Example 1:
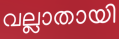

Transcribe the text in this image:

വല്ലാതായി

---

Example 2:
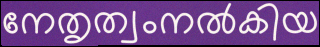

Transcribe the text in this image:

നേതൃത്വംനൽകിയ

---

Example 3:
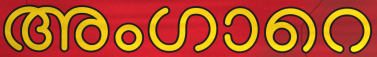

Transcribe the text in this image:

അംഗാറെ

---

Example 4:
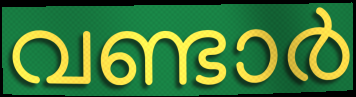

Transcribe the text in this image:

വണ്ടാർ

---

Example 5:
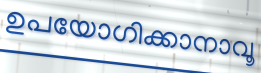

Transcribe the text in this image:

ഉപയോഗിക്കാനാവൂ